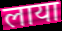
लाया